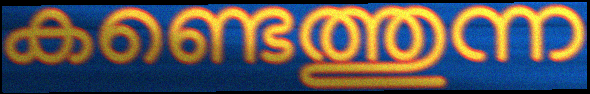
കണ്ടെത്തുന്ന